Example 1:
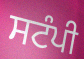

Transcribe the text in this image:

ਸਟੰਪੀ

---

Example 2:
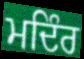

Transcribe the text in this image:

ਮਦਿੰਰ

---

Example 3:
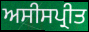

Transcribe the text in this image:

ਅਸੀਸਪ੍ਰੀਤ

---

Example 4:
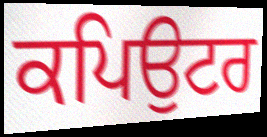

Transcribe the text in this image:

ਕਪਿਉਟਰ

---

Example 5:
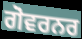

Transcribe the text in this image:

ਗੋਵਰਨਰ